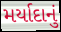
મર્યાદાનું